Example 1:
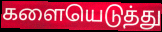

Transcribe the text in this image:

களையெடுத்து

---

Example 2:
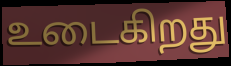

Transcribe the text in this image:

உடைகிறது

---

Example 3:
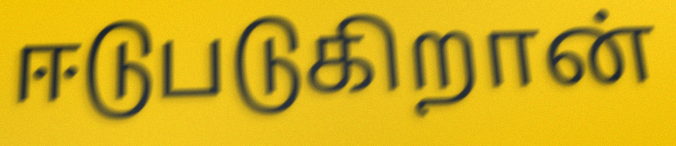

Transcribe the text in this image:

ஈடுபடுகிறான்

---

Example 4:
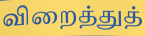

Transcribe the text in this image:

விறைத்துத்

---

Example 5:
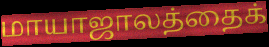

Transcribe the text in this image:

மாயாஜாலத்தைக்